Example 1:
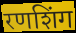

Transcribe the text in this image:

रणशिंग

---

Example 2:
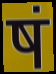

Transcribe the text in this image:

षं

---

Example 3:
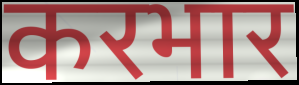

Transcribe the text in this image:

करभार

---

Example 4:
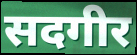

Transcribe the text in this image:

सदगीर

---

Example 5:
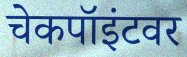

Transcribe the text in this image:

चेकपॉइंटवर